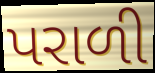
પરાળી